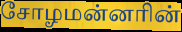
சோழமன்னரின்